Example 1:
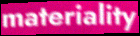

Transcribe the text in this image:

materiality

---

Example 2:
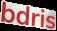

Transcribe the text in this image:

bdris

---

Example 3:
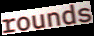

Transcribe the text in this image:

rounds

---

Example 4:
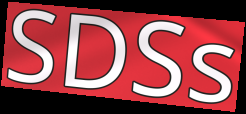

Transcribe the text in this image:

SDSs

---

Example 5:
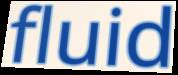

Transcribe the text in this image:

fluid